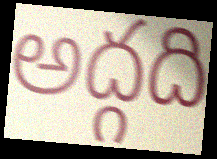
అద్గది